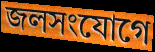
জলসংযোগে